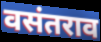
वसंतराव